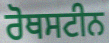
ਰੋਥਸਟੀਨ